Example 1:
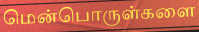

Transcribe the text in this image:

மென்பொருள்களை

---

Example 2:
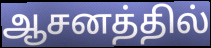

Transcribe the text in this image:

ஆசனத்தில்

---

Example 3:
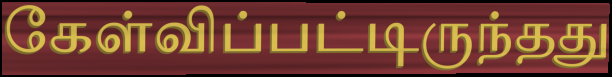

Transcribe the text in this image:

கேள்விப்பட்டிருந்தது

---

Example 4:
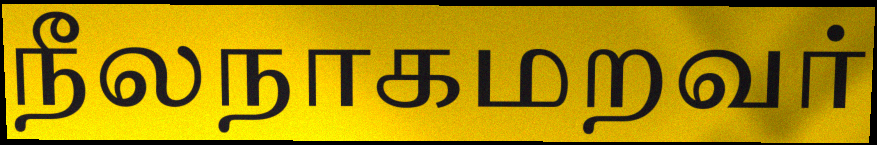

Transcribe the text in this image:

நீலநாகமறவர்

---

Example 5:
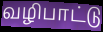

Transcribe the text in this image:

வழிபாட்டு